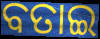
ବତାଇ